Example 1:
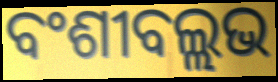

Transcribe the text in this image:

ବଂଶୀବଲ୍ଲଭ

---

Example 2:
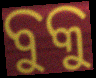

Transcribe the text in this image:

ବୁକୁ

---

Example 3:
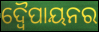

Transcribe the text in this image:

ଦ୍ୱୈପାୟନର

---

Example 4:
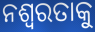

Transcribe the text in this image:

ନଶ୍ବରତାକୁ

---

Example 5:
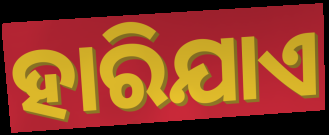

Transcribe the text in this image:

ହାରିଯାଏ